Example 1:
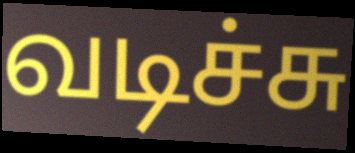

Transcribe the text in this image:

வடிச்சு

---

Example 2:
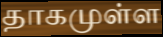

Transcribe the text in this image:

தாகமுள்ள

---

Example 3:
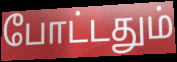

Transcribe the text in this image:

போட்டதும்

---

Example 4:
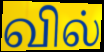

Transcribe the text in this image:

வில்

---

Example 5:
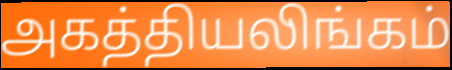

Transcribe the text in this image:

அகத்தியலிங்கம்